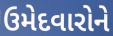
ઉમેદવારોને